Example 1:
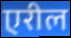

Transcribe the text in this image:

एरील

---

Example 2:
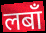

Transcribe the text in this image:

लबाँ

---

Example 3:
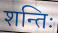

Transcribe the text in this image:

शन्तिः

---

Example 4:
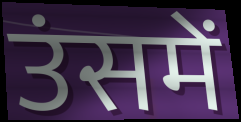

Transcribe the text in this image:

उंसमें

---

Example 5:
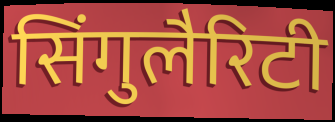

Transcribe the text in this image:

सिंगुलैरिटी